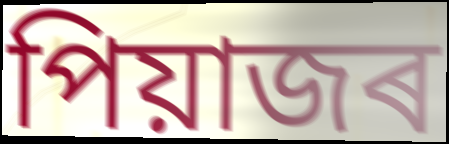
পিয়াজৰ